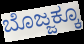
ಬೊಜ್ಜಕ್ಕೂ